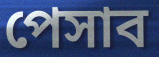
পেসাব